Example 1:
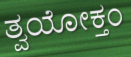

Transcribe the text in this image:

ತ್ವಯೋಕ್ತಂ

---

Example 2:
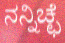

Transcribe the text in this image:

ನನ್ನಿಚ್ಛೆ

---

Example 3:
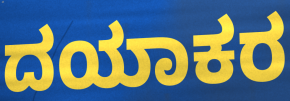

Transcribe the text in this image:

ದಯಾಕರ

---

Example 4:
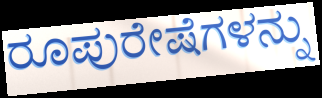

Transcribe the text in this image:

ರೂಪುರೇಷೆಗಳನ್ನು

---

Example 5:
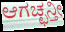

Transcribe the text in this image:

ಆಗಚ್ಛನ್ತೀ